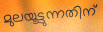
മുലയൂട്ടുന്നതിന്